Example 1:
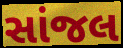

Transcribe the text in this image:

સાંજલ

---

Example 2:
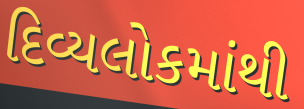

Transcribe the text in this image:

દિવ્યલોકમાંથી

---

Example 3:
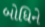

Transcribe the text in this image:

બોધિને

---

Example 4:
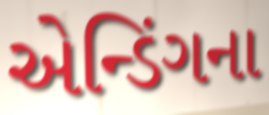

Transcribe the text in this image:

એન્ડિંગના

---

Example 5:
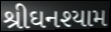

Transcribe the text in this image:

શ્રીઘનશ્યામ